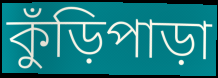
কুঁড়িপাড়া